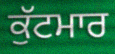
ਕੁੱਟਮਾਰ